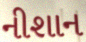
નીશાન